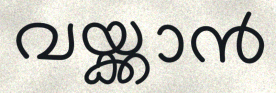
വയ്ക്കാൻ